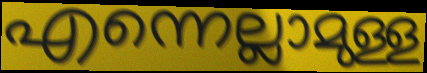
എന്നെല്ലാമുള്ള